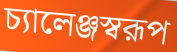
চ্যালেঞ্জস্বরূপ